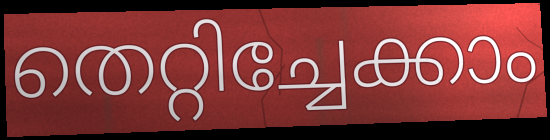
തെറ്റിച്ചേക്കാം